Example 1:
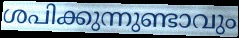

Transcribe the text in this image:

ശപിക്കുന്നുണ്ടാവും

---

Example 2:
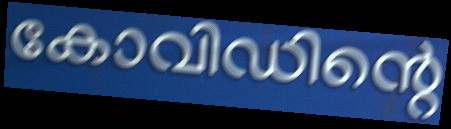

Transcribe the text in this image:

കോവിഡിന്റെ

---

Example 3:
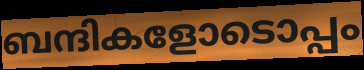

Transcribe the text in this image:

ബന്ദികളോടൊപ്പം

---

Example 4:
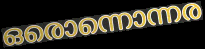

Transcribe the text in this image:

ഒരൊന്നൊന്നര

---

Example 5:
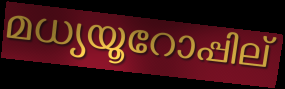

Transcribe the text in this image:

മധ്യയൂറോപ്പില്